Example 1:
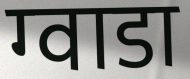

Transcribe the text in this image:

ग्वाडा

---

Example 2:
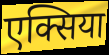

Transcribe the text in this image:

एक्सिया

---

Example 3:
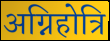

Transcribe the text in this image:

अग्निहोत्रि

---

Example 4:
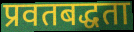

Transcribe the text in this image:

प्रवतबद्धता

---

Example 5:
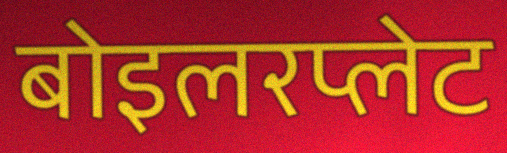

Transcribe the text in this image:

बोइलरप्लेट